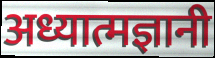
अध्यात्मज्ञानी